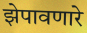
झेपावणारे